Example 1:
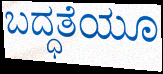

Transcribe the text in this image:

ಬದ್ಧತೆಯೂ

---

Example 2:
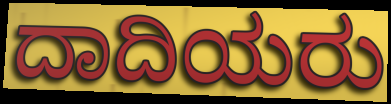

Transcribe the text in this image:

ದಾದಿಯರು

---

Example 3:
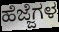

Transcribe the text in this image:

ಹೆಜ್ಜೆಗಳ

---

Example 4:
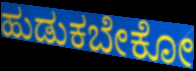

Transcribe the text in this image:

ಹುಡುಕಬೇಕೋ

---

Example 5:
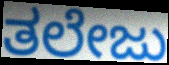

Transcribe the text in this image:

ತಲೇಜು